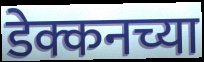
डेक्कनच्या